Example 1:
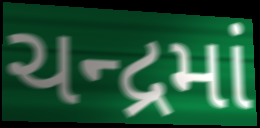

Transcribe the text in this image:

ચન્દ્રમાં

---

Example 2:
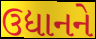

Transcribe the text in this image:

ઉદ્યાનને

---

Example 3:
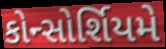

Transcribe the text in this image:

કોન્સોર્શિયમે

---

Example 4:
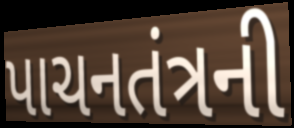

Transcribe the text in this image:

પાચનતંત્રની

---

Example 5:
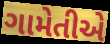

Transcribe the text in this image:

ગામેતીએ